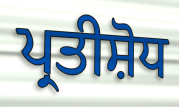
ਪ੍ਰਤੀਸ਼ੋਧ